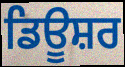
ਡਿਊਸ਼ਰ